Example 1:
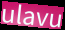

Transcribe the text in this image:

ulavu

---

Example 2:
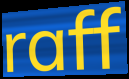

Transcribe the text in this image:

raff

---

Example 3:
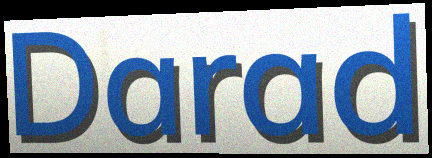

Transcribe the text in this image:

Darad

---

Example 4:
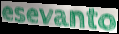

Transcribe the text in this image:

esevanto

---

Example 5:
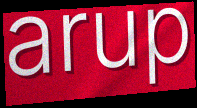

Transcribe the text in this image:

arup